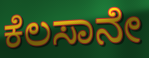
ಕೆಲಸಾನೇ